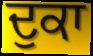
ਦੁਕਾ